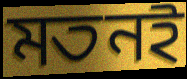
মতনই